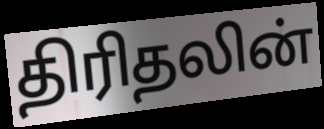
திரிதலின்